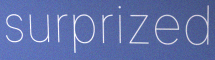
surprized